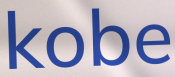
kobe